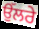
ਉੱਲਰੇ